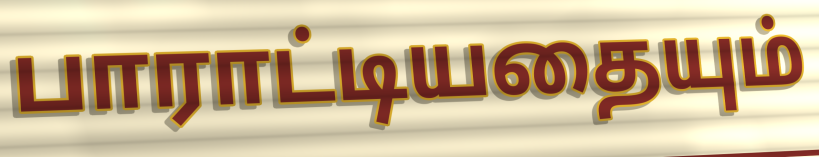
பாராட்டியதையும்